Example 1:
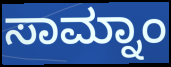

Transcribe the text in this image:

ಸಾಮ್ನಾಂ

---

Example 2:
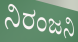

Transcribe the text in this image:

ನಿರಂಜನಿ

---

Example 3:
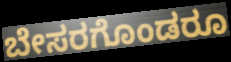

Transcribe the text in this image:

ಬೇಸರಗೊಂಡರೂ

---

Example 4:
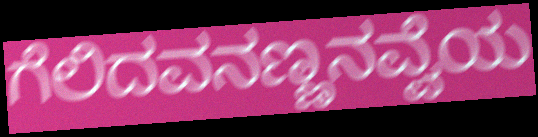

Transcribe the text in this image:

ಗೆಲಿದವನಣ್ಣನವ್ವೆಯ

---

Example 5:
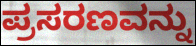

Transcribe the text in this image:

ಪ್ರಸರಣವನ್ನು